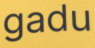
gadu